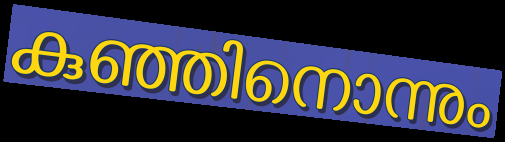
കുഞ്ഞിനൊന്നും